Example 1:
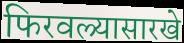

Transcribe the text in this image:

फिरवल्यासारखे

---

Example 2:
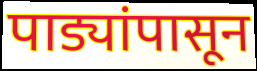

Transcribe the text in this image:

पाड्यांपासून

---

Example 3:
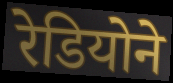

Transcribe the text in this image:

रेडियोने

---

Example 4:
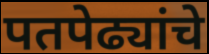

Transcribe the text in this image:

पतपेढ्यांचे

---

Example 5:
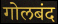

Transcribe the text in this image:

गोलबंद